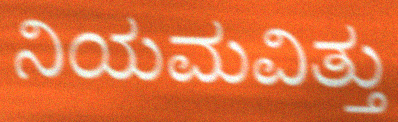
ನಿಯಮವಿತ್ತು